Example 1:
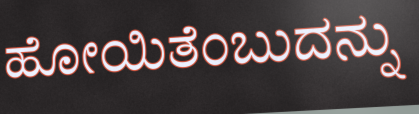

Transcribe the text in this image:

ಹೋಯಿತೆಂಬುದನ್ನು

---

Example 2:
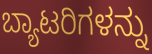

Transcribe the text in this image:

ಬ್ಯಾಟರಿಗಳನ್ನು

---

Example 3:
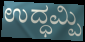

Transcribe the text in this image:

ಉದ್ಧಮ್ಪಿ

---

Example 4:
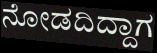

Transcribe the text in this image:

ನೋಡದಿದ್ದಾಗ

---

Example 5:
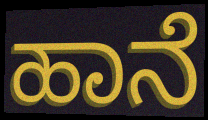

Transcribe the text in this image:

ಹಾನೆ